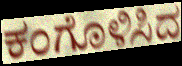
ಕಂಗೊಳಿಸಿದ